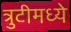
त्रुटीमध्ये